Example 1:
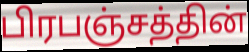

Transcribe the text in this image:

பிரபஞ்சத்தின்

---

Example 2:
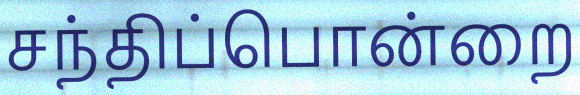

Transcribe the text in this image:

சந்திப்பொன்றை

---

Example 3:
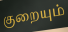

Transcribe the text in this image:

குறையும்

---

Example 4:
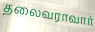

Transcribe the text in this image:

தலைவராவார்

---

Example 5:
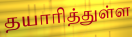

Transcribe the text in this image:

தயாரித்துள்ள